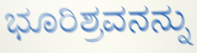
ಭೂರಿಶ್ರವನನ್ನು